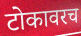
टोकावरच